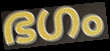
ഭഗം